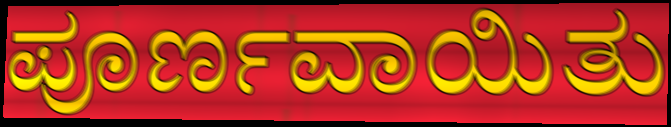
ಪೂರ್ಣವಾಯಿತು